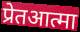
प्रेतआत्मा